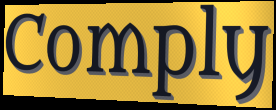
Comply